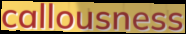
callousness